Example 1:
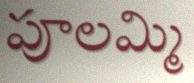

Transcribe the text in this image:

పూలమ్మి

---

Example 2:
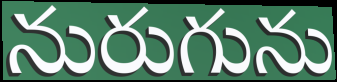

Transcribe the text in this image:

నురుగును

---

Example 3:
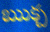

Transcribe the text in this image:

ఋక్చ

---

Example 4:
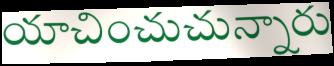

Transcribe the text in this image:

యాచించుచున్నారు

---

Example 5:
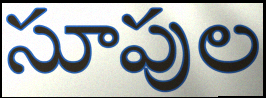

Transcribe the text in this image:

సూపుల